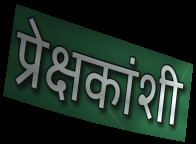
प्रेक्षकांशी